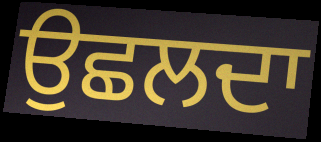
ਉਛਲਦਾ